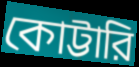
কোট্টারি